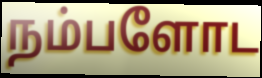
நம்பளோட